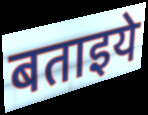
बताइये